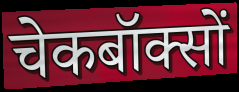
चेकबॉक्सों